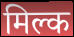
मिल्क